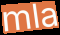
mla